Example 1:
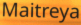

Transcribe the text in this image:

Maitreya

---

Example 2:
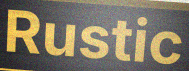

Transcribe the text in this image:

Rustic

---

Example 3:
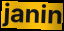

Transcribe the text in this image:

janin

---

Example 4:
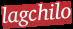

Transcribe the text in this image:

lagchilo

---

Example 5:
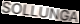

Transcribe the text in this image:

SOLLUNGA